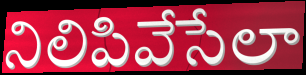
నిలిపివేసేలా